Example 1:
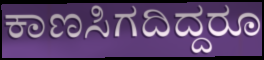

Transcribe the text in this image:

ಕಾಣಸಿಗದಿದ್ದರೂ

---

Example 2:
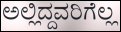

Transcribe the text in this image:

ಅಲ್ಲಿದ್ದವರಿಗೆಲ್ಲ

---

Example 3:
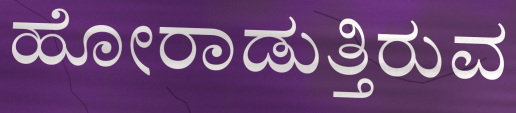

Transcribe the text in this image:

ಹೋರಾಡುತ್ತಿರುವ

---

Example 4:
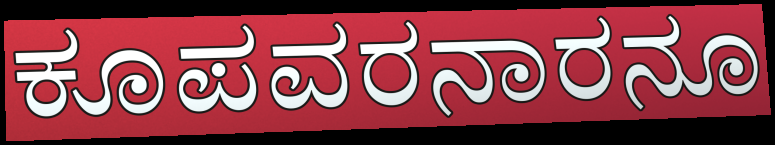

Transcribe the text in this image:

ಕೂಪವರನಾರನೂ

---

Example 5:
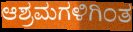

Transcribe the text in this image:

ಆಶ್ರಮಗಳಿಗಿಂತ